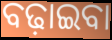
ବଢ଼ାଇବା